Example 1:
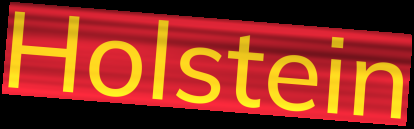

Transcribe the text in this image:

Holstein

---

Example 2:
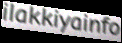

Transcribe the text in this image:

ilakkiyainfo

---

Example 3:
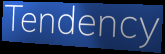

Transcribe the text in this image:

Tendency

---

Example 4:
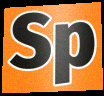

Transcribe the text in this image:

Sp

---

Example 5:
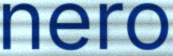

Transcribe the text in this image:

nero